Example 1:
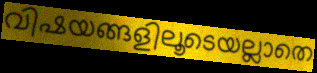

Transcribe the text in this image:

വിഷയങ്ങളിലൂടെയല്ലാതെ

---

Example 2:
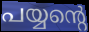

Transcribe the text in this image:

പയ്യന്റെ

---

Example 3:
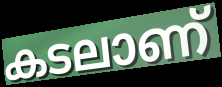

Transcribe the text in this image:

കടലാണ്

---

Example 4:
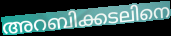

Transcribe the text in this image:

അറബിക്കടലിനെ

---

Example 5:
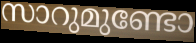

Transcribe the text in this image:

സാറുമുണ്ടോ